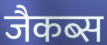
जैकब्स